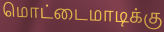
மொட்டைமாடிக்கு